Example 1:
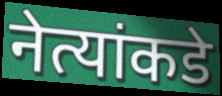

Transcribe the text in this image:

नेत्यांकडे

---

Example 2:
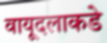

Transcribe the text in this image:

वायूदलाकडे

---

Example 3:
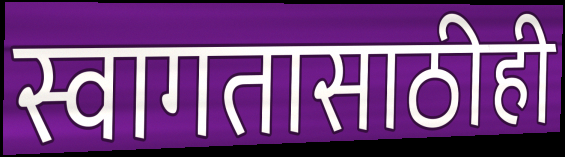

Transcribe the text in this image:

स्वागतासाठीही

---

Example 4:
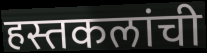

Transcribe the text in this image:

हस्तकलांची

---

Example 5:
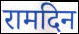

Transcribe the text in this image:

रामदिन